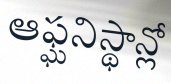
ఆఫ్ఘనిస్థాన్లో